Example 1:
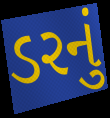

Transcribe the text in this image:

ડરનું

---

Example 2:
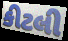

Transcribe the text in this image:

કીટલી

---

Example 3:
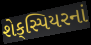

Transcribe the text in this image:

શેક્‌સ્પિયરનાં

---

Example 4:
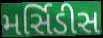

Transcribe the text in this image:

મર્સિડીસ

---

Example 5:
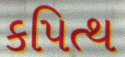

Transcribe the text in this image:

કપિત્થ